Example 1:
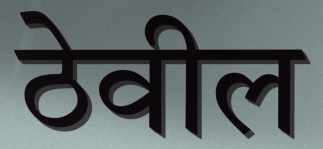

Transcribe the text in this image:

ठेवील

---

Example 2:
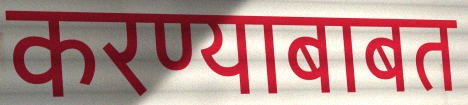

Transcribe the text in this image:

करण्याबाबत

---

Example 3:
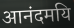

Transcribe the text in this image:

आनंदमयि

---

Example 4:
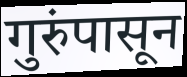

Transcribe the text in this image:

गुरुंपासून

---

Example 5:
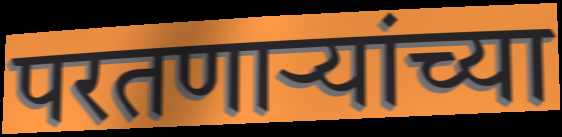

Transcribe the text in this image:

परतणाऱ्यांच्या